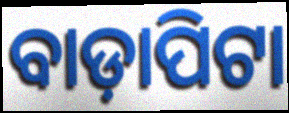
ବାଡ଼ାପିଟା